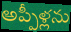
అప్పీళ్లను